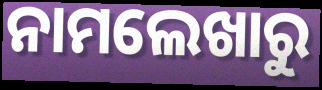
ନାମଲେଖାରୁ